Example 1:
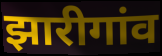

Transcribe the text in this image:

झारीगांव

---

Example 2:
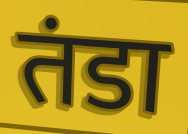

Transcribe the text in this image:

तंडा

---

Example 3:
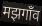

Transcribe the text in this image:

मझगाँव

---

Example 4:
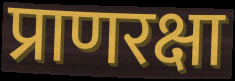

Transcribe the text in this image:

प्राणरक्षा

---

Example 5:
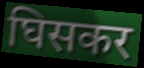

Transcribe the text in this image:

घिसकर